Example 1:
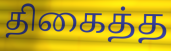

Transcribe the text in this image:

திகைத்த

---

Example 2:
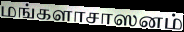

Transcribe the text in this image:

மங்களாசாஸனம்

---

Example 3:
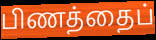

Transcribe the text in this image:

பிணத்தைப்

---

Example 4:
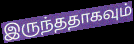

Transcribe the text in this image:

இருந்ததாகவும்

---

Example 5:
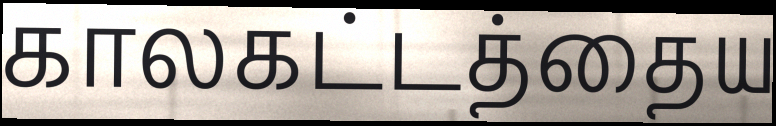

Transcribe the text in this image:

காலகட்டத்தைய